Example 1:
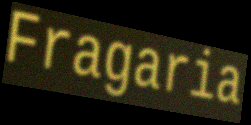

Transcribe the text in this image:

Fragaria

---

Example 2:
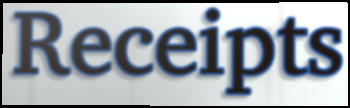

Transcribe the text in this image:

Receipts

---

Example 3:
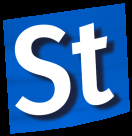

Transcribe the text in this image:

St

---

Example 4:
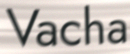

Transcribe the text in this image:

Vacha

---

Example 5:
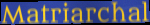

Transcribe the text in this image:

Matriarchal